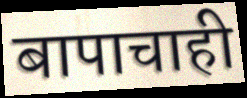
बापाचाही